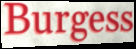
Burgess